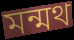
মন্মথ